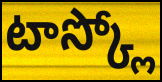
టాస్క్లో